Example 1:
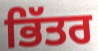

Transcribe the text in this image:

ਭਿੱਤਰ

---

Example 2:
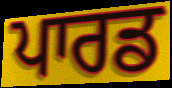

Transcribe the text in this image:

ਪਾਰਡ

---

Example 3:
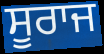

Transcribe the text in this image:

ਸੂਰਾਜ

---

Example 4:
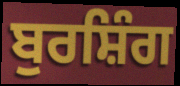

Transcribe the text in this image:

ਬੁਰਸ਼ਿੰਗ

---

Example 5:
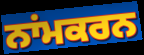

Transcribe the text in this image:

ਨਾਂਮਕਰਨ